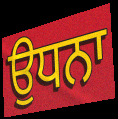
ਉਧਨਾ